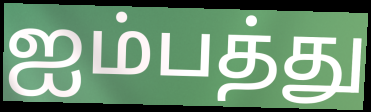
ஐம்பத்து